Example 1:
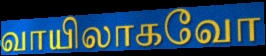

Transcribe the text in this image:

வாயிலாகவோ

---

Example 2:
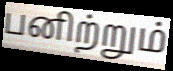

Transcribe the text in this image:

பனிற்றும்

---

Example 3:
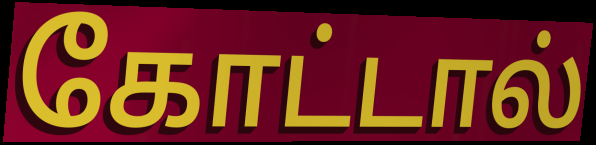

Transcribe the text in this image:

கோட்டால்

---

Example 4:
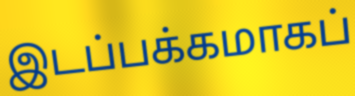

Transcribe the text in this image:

இடப்பக்கமாகப்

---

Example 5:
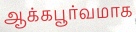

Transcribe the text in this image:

ஆக்கபூர்வமாக